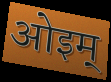
ओइम्